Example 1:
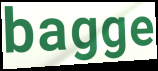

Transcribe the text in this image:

bagge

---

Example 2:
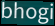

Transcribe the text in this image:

bhogi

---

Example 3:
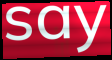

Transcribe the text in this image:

say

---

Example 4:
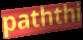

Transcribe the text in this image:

paththi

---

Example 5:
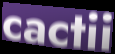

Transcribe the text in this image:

cactii